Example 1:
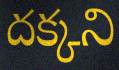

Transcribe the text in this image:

దక్కని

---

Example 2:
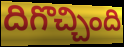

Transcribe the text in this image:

దిగొచ్చింది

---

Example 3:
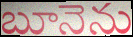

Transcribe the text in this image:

బూనెను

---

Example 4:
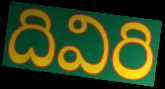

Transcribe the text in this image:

దివిరి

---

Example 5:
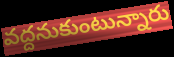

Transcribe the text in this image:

వద్దనుకుంటున్నారు